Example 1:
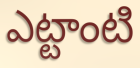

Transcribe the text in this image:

ఎట్టాంటి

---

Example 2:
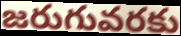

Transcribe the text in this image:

జరుగువరకు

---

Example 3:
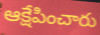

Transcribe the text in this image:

ఆక్షేపించారు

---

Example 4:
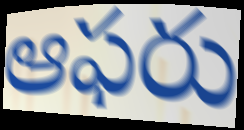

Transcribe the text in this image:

ఆఫరు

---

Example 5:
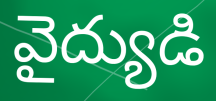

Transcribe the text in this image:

వైద్యుడి